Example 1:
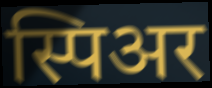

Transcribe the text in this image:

स्पिअर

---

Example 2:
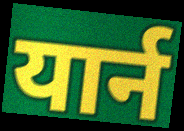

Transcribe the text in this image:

यार्न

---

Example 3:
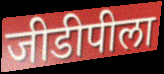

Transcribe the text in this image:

जीडीपीला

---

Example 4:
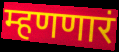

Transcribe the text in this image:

म्हणणारं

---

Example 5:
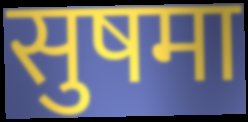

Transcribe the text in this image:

सुषमा